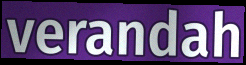
verandah